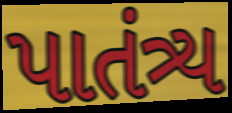
પાતંત્ર્ય